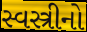
સ્વસ્ત્રીનો